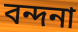
বন্দনা